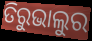
ତିରୁଭାଲୁର